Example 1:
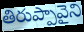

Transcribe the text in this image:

తిరుప్పావైని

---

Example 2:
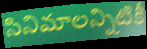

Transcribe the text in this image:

సినిమాలన్నిటికీ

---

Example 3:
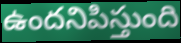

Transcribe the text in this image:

ఉందనిపిస్తుంది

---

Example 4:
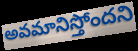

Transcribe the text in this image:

అవమానిస్తోందని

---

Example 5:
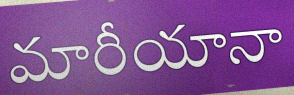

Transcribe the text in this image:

మారీయానా